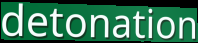
detonation